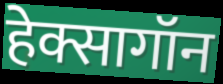
हेक्सागॉन